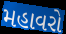
મહાવરો